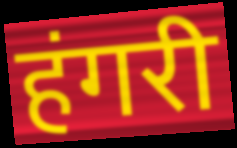
हंगरी